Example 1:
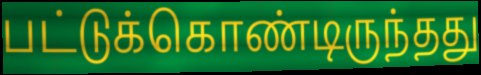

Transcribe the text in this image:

பட்டுக்கொண்டிருந்தது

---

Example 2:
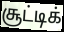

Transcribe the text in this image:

சூட்டிக்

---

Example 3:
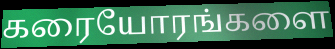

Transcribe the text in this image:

கரையோரங்களை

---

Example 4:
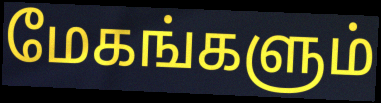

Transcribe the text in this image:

மேகங்களும்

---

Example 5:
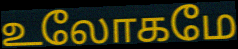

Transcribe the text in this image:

உலோகமே